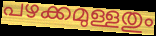
പഴക്കമുള്ളതും